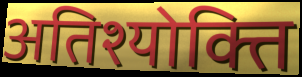
अतिश्योक्ति